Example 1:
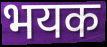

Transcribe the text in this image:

भयक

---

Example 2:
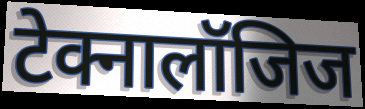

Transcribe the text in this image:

टेक्नालॉजिज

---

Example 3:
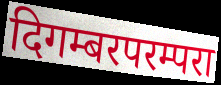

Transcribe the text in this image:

दिगम्बरपरम्परा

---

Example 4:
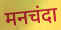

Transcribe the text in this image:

मनचंदा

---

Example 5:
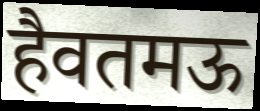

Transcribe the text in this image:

हैवतमऊ